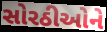
સોરઠીઓને